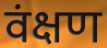
वंक्षण